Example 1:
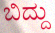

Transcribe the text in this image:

ಬಿದ್ದು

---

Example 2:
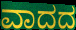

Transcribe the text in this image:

ವಾದದ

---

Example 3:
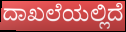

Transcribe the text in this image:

ದಾಖಲೆಯಲ್ಲಿದೆ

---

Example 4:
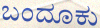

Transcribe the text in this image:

ಬಂದೂಕು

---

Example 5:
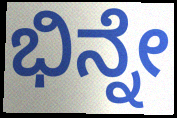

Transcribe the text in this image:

ಭಿನ್ನೇ